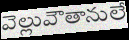
వెల్లువౌతానులే